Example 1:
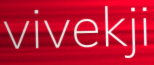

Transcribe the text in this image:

vivekji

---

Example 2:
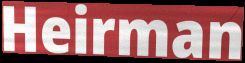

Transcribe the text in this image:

Heirman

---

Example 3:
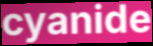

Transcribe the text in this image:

cyanide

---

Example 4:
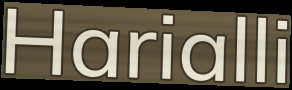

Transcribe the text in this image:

Harialli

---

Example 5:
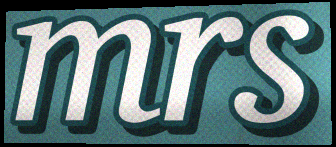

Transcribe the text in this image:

mrs